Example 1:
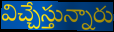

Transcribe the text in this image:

విచ్చేస్తున్నారు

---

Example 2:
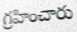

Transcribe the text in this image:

గ్రహించారు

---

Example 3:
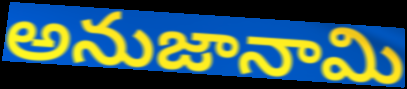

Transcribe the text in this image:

అనుజానామి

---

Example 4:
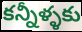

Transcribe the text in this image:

కన్నీళ్ళకు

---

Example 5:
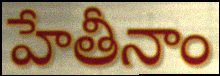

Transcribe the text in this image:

హేతీనాం